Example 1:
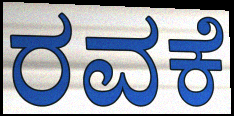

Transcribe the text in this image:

ರವಕೆ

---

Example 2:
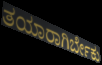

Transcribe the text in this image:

ತಯಾರಾಗಿರ್ಬೇಕು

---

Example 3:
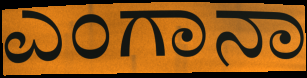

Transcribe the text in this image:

ಎಂಗಾನಾ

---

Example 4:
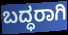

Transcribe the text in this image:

ಬದ್ಧರಾಗಿ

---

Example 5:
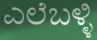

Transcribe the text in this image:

ಎಲೆಬಳ್ಳಿ